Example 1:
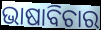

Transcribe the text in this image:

ଭାଷାବିଚାର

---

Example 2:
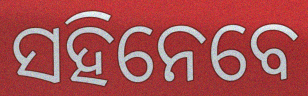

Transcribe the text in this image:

ସହିନେବେ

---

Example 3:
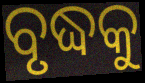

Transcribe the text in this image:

ବୃଦ୍ଧକୁ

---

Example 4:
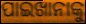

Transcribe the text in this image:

ପାଇଖାନାକୁ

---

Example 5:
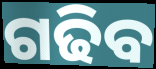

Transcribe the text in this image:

ଗଢିବ